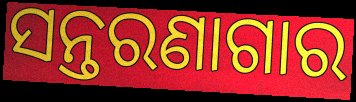
ସନ୍ତରଣାଗାର